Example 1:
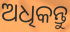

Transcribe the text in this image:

ଅଧିକନ୍ତୁ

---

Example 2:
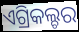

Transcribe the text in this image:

ଏଗ୍ରିକଲ୍ଚର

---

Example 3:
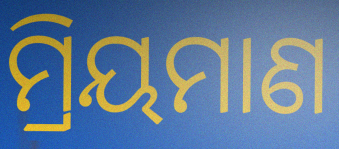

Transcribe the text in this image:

ମ୍ରିୟମାଣ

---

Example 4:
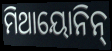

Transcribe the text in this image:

ମିଥାୟୋନିନ୍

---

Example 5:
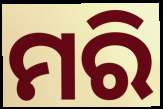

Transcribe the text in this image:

ମରି